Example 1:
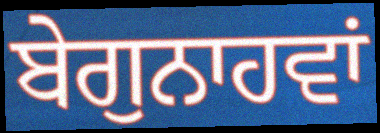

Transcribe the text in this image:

ਬੇਗੁਨਾਹਵਾਂ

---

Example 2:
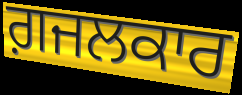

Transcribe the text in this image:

ਗ਼ਜਲਕਾਰ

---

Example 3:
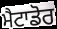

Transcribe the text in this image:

ਮੈਟਾਡੋਰ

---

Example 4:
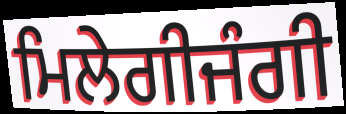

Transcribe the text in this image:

ਮਿਲੇਗੀਜੰਗੀ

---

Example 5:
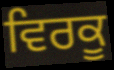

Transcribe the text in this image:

ਵਿਰਕੂ